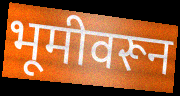
भूमीवरून